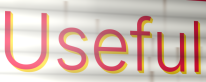
Useful